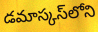
డమాస్కస్‌లోని